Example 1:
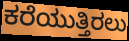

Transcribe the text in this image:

ಕರೆಯುತ್ತಿರಲು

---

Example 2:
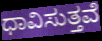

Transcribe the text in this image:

ಧಾವಿಸುತ್ತವೆ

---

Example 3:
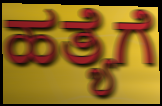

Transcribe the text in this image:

ಹತ್ಯೆಗೆ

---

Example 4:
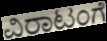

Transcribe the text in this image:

ವಿರಾಟಂಗೆ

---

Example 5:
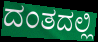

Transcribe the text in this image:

ದಂತದಲ್ಲಿ